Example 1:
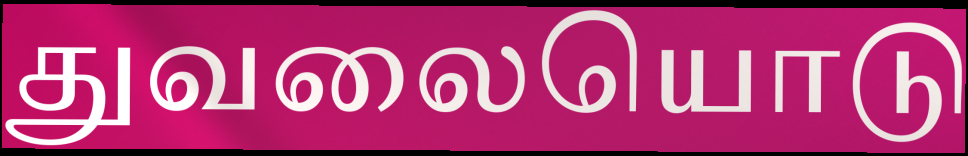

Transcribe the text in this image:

துவலையொடு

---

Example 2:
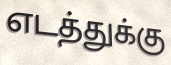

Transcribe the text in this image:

எடத்துக்கு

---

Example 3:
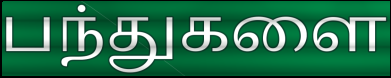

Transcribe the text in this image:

பந்துகளை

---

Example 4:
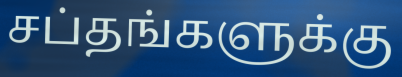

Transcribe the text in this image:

சப்தங்களுக்கு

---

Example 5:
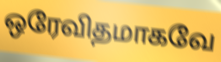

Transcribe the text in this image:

ஒரேவிதமாகவே